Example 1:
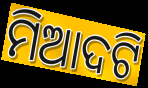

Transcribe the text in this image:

ମିଆଦଟି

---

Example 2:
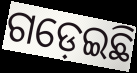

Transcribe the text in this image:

ଗଡ଼େଇଛି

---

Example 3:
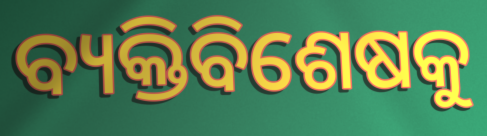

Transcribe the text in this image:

ବ୍ୟକ୍ତିବିଶେଷକୁ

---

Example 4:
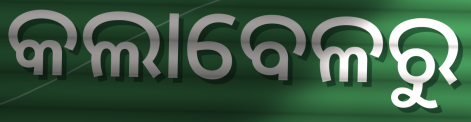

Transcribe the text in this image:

କଲାବେଳରୁ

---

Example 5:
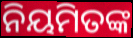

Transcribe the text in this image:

ନିୟମିତଙ୍କ